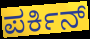
ಪರ್ಕಿನ್